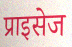
प्राइसेज